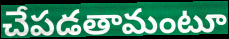
చేపడతామంటూ